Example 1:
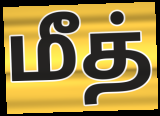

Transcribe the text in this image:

மீத்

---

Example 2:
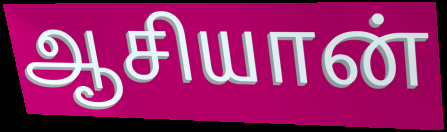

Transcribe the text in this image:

ஆசியான்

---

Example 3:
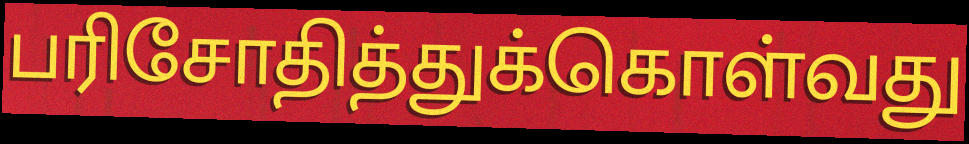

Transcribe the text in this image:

பரிசோதித்துக்கொள்வது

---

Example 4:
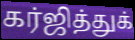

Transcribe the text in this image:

கர்ஜித்துக்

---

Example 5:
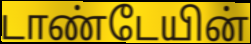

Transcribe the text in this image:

டாண்டேயின்